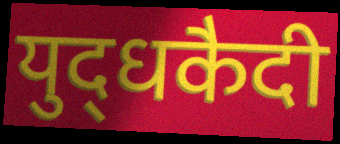
युद्धकैदी